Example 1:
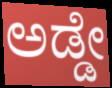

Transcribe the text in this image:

ಅಡ್ಡೇ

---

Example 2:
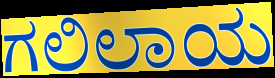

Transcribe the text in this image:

ಗಲಿಲಾಯ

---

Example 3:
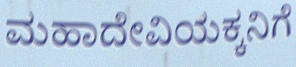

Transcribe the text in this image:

ಮಹಾದೇವಿಯಕ್ಕನಿಗೆ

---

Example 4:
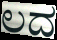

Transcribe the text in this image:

ಲದ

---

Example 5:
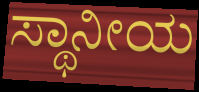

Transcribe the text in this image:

ಸ್ಥಾನೀಯ